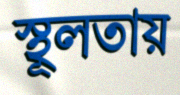
স্থূলতায়